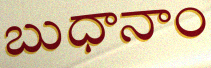
బుధానాం